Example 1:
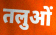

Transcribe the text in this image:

तलुओं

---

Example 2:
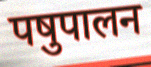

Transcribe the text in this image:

पषुपालन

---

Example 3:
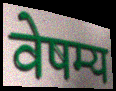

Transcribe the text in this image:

वेषम्य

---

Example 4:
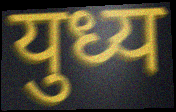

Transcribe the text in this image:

युध्य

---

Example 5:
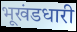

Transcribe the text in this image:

भूखंडधारी